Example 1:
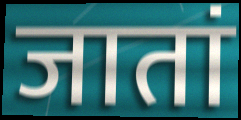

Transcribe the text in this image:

जातां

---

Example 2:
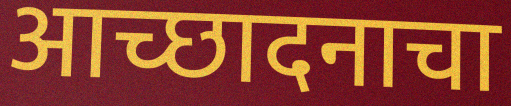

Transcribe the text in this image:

आच्छादनाचा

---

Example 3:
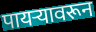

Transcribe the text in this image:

पायऱ्यावरून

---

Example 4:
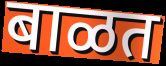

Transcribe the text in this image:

बाळत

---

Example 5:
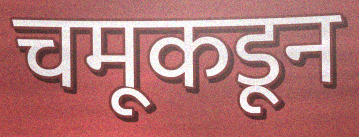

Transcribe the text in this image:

चमूकडून